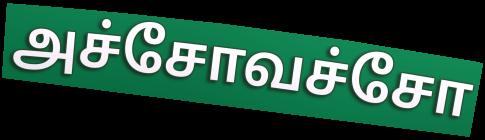
அச்சோவச்சோ